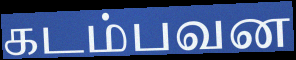
கடம்பவன